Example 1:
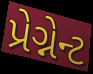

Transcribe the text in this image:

પ્રેગ્નેન્ટ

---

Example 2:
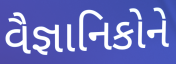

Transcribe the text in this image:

વૈજ્ઞાનિકોને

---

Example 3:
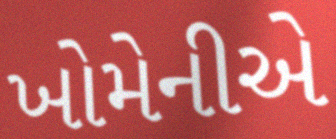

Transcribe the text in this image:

ખોમેનીએ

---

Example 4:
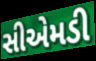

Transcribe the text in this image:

સીએમડી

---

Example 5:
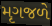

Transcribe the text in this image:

મૃગજળે